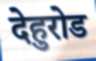
देहुरोड